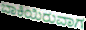
ಬಾಕಿಯಿರುವಾಗ